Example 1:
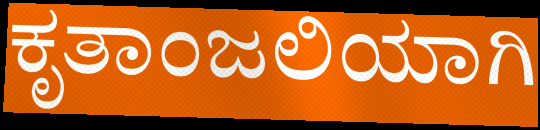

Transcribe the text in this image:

ಕೃತಾಂಜಲಿಯಾಗಿ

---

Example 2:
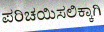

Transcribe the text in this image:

ಪರಿಚಯಿಸಲಿಕ್ಕಾಗಿ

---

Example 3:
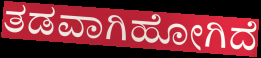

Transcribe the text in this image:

ತಡವಾಗಿಹೋಗಿದೆ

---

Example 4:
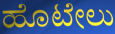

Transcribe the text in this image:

ಹೊಟೇಲು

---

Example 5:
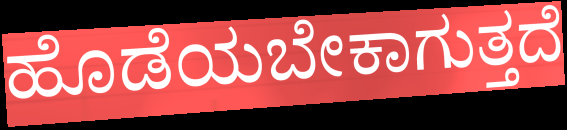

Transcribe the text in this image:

ಹೊಡೆಯಬೇಕಾಗುತ್ತದೆ